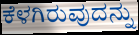
ಕೆಳಗಿರುವುದನ್ನು